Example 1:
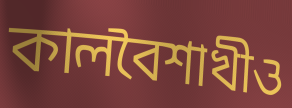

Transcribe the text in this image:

কালবৈশাখীও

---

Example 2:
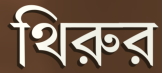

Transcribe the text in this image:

থিরুর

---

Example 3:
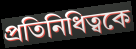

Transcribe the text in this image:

প্রতিনিধিত্বকে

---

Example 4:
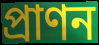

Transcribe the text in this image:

প্রাণন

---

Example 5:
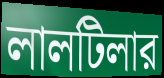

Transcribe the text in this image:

লালটিলার